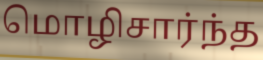
மொழிசார்ந்த